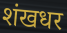
शंखधर